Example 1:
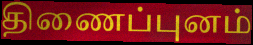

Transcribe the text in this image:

திணைப்புனம்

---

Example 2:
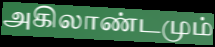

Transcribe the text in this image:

அகிலாண்டமும்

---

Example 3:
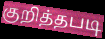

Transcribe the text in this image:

குறித்தபடி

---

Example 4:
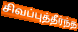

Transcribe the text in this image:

சிவப்புத்தீர்ந்த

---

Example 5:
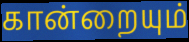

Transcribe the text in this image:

கான்றையும்